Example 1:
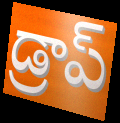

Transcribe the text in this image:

డ్రాప్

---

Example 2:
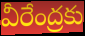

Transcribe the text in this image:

వీరేంద్రకు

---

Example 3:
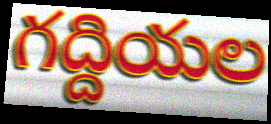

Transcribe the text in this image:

గద్దియల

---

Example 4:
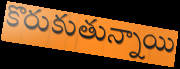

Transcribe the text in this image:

కొరుకుతున్నాయి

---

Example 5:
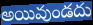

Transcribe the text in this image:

అయివుండదు